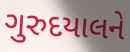
ગુરુદયાલને